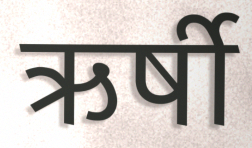
ऋर्षी